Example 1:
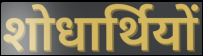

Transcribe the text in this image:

शोधार्थियों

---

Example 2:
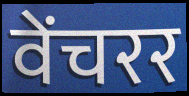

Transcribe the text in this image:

वेंचरर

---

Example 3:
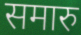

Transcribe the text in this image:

समारु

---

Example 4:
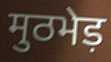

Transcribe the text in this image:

मुठभेड़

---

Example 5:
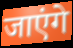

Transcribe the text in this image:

जाएंगे